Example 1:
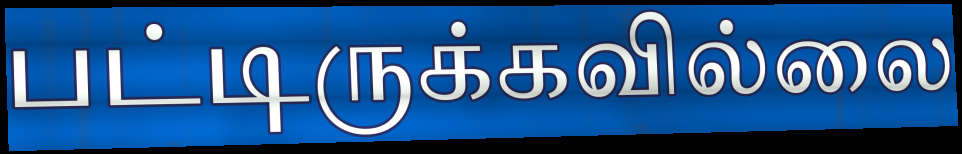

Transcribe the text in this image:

பட்டிருக்கவில்லை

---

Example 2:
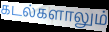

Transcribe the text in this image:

கடல்களாலும்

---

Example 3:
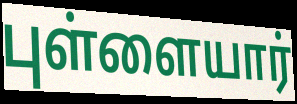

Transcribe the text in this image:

புள்ளையார்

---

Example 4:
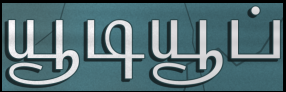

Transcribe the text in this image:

யூடியூப்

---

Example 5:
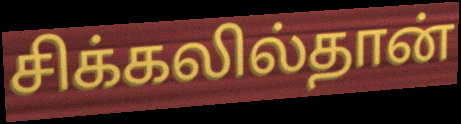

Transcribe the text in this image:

சிக்கலில்தான்